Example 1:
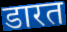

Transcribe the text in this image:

डारत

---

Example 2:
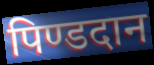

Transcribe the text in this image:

पिण्डदान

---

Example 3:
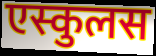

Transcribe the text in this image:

एस्कुलस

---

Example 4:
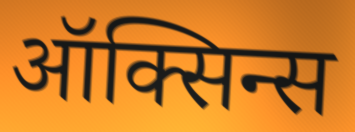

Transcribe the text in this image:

ऑक्सिन्स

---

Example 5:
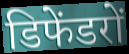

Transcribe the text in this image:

डिफेंडरों